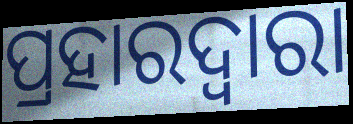
ପ୍ରହାରଦ୍ଵାରା